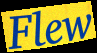
Flew